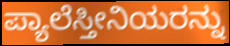
ಪ್ಯಾಲೆಸ್ತೀನಿಯರನ್ನು